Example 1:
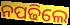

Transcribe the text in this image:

ନପଢିଲେ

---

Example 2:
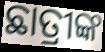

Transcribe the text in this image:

ଛାତ୍ରୀଙ୍କ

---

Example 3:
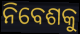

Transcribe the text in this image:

ନିବେଶକୁ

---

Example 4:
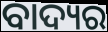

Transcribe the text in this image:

ବାଦ୍ୟର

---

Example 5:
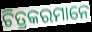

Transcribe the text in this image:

ଚିତ୍ରକରମାନେ